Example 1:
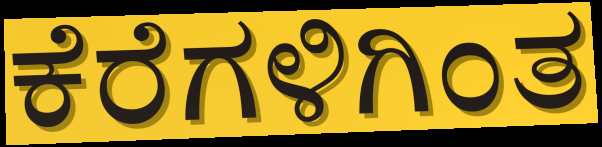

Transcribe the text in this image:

ಕೆರೆಗಳಿಗಿಂತ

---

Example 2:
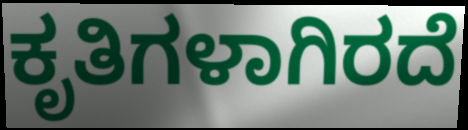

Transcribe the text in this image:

ಕೃತಿಗಳಾಗಿರದೆ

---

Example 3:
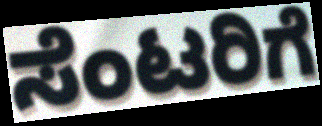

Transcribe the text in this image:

ಸೆಂಟರಿಗೆ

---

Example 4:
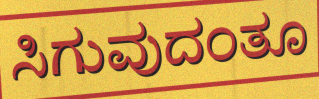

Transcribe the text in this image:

ಸಿಗುವುದಂತೂ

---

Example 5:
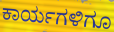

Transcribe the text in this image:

ಕಾರ್ಯಗಳಿಗೂ